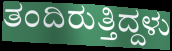
ತಂದಿರುತ್ತಿದ್ದಳು